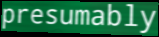
presumably